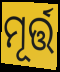
ମୂର୍ତ୍ତ